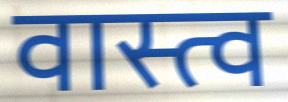
वास्त्व